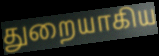
துறையாகிய